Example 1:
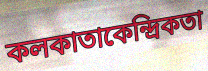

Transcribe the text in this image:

কলকাতাকেন্দ্রিকতা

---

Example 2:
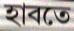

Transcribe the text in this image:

হাবতে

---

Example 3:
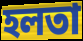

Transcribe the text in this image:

হলতা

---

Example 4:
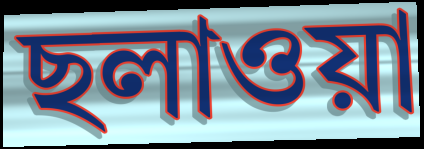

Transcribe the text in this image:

ছলাওয়া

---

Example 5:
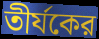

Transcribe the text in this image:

তীর্যকের